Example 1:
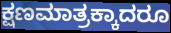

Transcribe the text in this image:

ಕ್ಷಣಮಾತ್ರಕ್ಕಾದರೂ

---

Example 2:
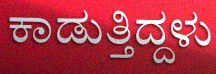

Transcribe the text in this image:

ಕಾಡುತ್ತಿದ್ದಳು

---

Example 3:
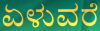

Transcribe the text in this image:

ಏಳುವರೆ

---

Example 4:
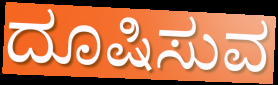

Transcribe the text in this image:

ದೂಷಿಸುವ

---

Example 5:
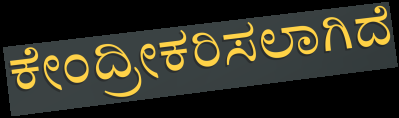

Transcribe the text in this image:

ಕೇಂದ್ರೀಕರಿಸಲಾಗಿದೆ